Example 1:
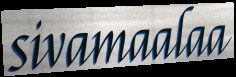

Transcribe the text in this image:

sivamaalaa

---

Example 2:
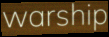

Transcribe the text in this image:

warship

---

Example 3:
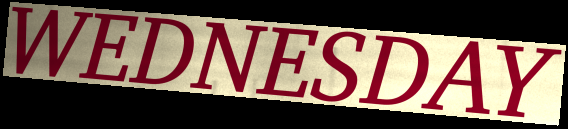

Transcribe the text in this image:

WEDNESDAY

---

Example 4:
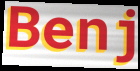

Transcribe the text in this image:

Benj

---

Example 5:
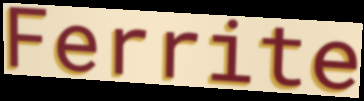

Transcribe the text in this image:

Ferrite